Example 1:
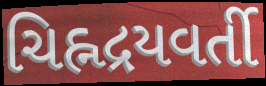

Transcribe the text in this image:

ચિહ્નદ્રયવર્તી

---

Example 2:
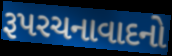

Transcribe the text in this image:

રૂપરચનાવાદનો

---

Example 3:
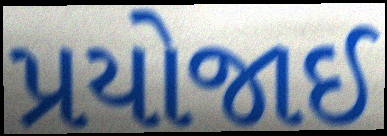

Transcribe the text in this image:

પ્રયોજાઈ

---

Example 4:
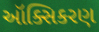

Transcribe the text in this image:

ઑક્સિકરણ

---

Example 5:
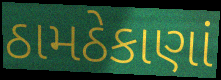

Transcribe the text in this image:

ઠામઠેકાણાં